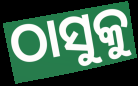
ଠାସୁକୁ